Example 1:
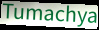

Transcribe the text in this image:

Tumachya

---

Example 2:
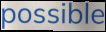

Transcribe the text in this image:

possible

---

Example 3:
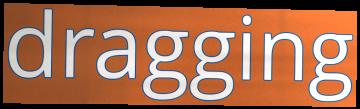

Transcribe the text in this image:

dragging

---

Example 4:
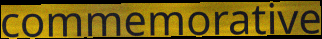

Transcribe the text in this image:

commemorative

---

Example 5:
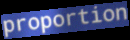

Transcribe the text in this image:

proportion